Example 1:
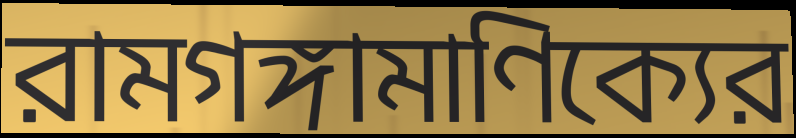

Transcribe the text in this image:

রামগঙ্গামাণিক্যের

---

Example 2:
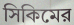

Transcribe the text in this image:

সিকিমের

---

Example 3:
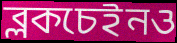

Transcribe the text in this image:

ব্লকচেইনও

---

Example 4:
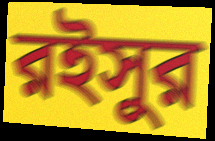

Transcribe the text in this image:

রইসুর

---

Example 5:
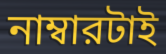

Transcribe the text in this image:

নাম্বারটাই